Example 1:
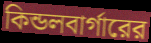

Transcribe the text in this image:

কিন্ডলবার্গারের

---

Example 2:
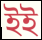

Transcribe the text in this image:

ইই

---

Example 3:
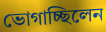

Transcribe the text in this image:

ভোগাচ্ছিলেন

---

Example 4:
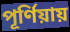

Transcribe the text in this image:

পূর্ণিয়ায়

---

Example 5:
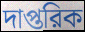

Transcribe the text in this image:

দাপ্তরিক